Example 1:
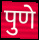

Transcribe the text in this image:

पुणे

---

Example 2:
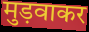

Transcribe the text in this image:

मुड़वाकर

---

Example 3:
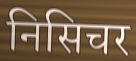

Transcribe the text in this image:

निसिचर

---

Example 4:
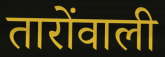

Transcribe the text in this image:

तारोंवाली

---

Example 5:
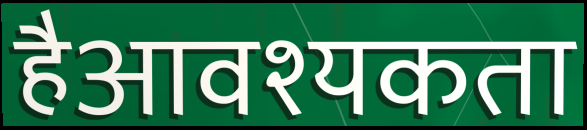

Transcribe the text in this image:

हैआवश्यकता